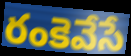
రంకెవేసే